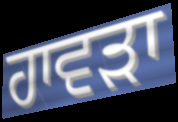
ਹਾਵਡ਼ਾ